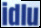
idlu